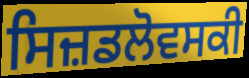
ਸਿਜ਼ਡਲੋਵਸਕੀ